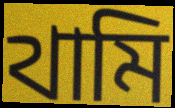
থামি